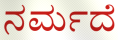
ನರ್ಮದೆ